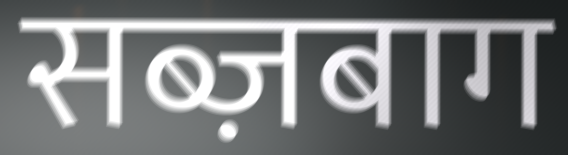
सब्ज़बाग